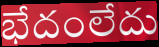
భేదంలేదు